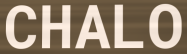
CHALO